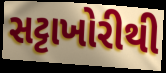
સટ્ટાખોરીથી